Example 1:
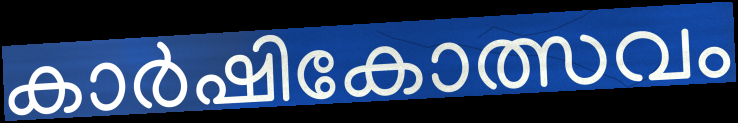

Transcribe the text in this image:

കാർഷികോത്സവം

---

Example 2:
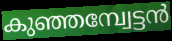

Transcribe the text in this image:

കുഞ്ഞമ്പ്വേട്ടൻ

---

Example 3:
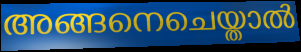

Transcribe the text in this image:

അങ്ങനെചെയ്താൽ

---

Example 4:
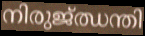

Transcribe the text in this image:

നിരുജ്ഝന്തി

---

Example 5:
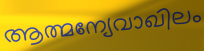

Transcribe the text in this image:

ആത്മന്യേവാഖിലം